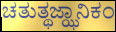
ಚತುತ್ಥಜ್ಝಾನಿಕಂ